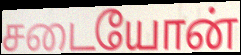
சடையோன்